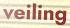
veiling